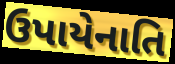
ઉપાયેનાતિ